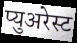
प्युअरेस्ट